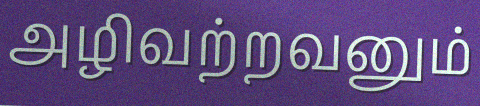
அழிவற்றவனும்